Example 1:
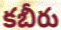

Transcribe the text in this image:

కబీరు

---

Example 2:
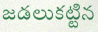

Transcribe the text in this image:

జడలుకట్టిన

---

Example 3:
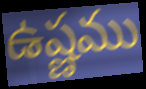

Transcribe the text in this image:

ఉష్ణము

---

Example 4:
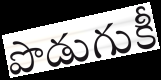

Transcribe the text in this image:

పొడుగుకీ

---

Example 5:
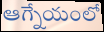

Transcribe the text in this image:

ఆగ్నేయంలో